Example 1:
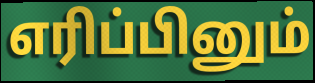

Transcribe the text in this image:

எரிப்பினும்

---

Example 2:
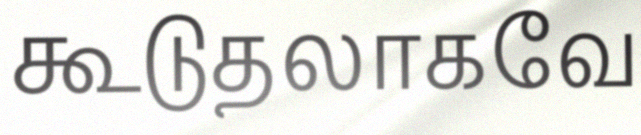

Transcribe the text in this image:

கூடுதலாகவே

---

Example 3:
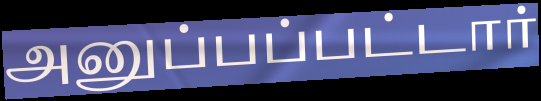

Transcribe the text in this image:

அனுப்பப்பட்டார்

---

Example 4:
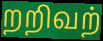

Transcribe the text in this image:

றறிவற்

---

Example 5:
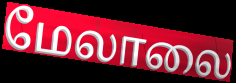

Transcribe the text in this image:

மேலாலை